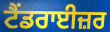
ਟੈਂਡਰਾਈਜ਼ਰ